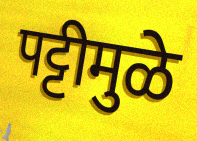
पट्टीमुळे